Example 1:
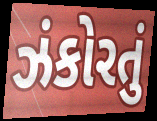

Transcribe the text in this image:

ઝંકોરતું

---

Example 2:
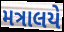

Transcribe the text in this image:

મત્રાલયે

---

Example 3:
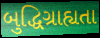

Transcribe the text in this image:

બુદ્ધિગ્રાહ્યતા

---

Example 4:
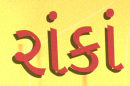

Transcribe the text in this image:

રાંકાં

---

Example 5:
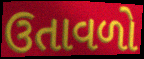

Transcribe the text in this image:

ઉતાવળો